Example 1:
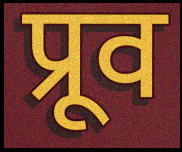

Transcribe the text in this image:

प्रूव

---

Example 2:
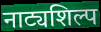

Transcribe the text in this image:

नाट्यशिल्प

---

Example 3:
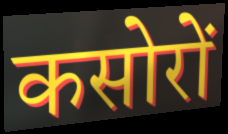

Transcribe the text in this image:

कसोरों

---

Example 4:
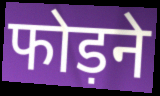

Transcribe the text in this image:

फोड़ने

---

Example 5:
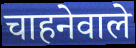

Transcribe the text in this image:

चाहनेवाले